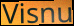
Visnu